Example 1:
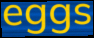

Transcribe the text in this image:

eggs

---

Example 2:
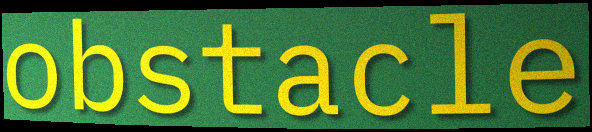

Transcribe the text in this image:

obstacle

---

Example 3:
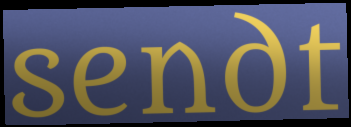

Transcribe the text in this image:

sendt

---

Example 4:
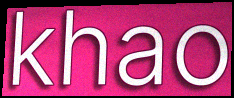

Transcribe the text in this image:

khao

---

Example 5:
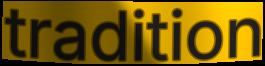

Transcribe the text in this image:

tradition